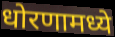
धोरणामध्ये